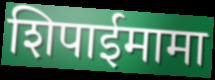
शिपाईमामा